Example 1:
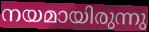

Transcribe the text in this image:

നയമായിരുന്നു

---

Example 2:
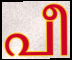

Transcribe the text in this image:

പീ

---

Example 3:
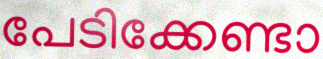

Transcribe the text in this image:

പേടിക്കേണ്ടാ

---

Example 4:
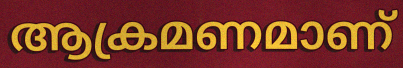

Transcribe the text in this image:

ആക്രമണമാണ്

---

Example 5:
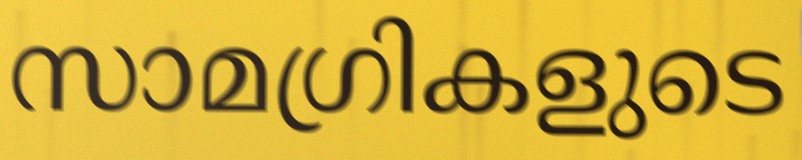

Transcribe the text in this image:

സാമഗ്രികളുടെ